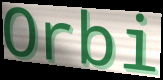
Orbi